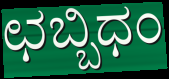
ಛಬ್ಬಿಧಂ